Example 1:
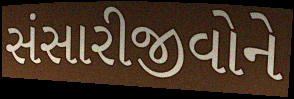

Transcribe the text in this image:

સંસારીજીવોને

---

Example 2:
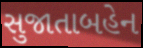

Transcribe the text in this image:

સુજાતાબહેન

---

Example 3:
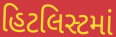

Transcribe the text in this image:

હિટલિસ્ટમાં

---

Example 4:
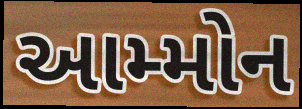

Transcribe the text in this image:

આમ્મોન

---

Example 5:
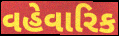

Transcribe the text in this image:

વહેવારિક